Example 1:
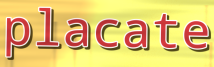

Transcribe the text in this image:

placate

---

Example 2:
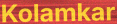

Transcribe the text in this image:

Kolamkar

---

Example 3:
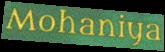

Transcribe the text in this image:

Mohaniya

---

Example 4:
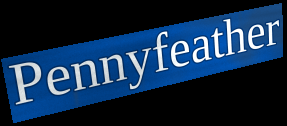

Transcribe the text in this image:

Pennyfeather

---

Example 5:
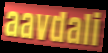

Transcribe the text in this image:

aavdali